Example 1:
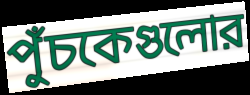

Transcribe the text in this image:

পুঁচকেগুলোর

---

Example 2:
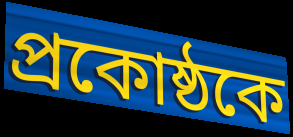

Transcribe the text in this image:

প্রকোষ্ঠকে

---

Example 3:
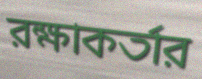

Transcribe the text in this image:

রক্ষাকর্তার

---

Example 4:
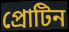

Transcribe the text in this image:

প্রোটিন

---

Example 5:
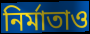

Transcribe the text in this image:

নির্মাতাও